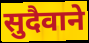
सुदैवाने